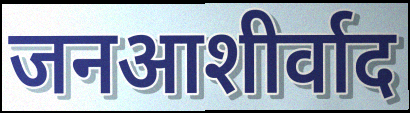
जनआशीर्वाद